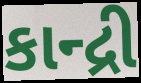
કાન્દ્રી